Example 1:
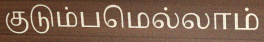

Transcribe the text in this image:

குடும்பமெல்லாம்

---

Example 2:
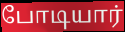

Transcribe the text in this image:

போடியார்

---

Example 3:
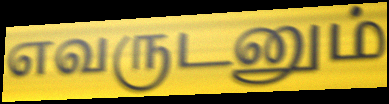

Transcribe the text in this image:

எவருடனும்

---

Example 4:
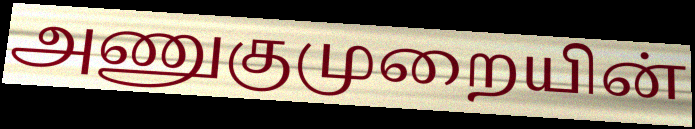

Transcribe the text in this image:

அணுகுமுறையின்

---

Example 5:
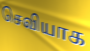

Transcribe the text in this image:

செவியாக